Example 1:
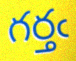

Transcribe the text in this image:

గర్తఁ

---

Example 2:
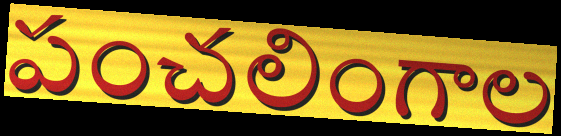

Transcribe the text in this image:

పంచలింగాల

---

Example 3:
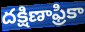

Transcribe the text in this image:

దక్షిణాఫ్రికా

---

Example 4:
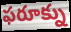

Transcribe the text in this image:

ఫరూక్ను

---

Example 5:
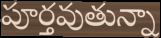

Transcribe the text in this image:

పూర్తవుతున్నా